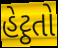
હેટ્ઠતો